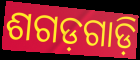
ଶଗଡ଼ଗାଡ଼ି